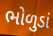
ભોળુડાં